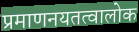
प्रमाणनयतत्वालोक